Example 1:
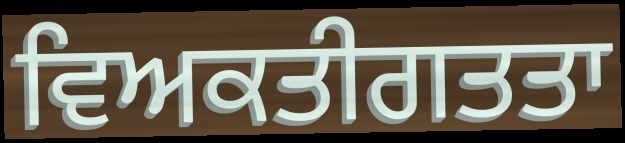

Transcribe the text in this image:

ਵਿਅਕਤੀਗਤਤਾ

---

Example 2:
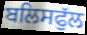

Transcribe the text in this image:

ਬਲਿਸਫੁੱਲ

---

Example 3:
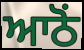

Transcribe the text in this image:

ਆਠੋਂ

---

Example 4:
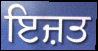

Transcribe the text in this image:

ਇਜ਼ਤ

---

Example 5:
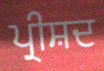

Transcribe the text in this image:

ਪ੍ਰ੍ਰੀਸ਼ਦ